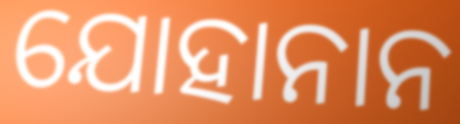
ଯୋହାନାନ